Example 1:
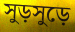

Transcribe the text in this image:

সুড়সুড়ে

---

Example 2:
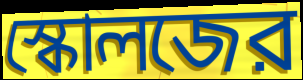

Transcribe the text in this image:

স্কোলজের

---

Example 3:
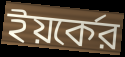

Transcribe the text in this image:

ইয়র্কের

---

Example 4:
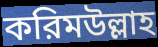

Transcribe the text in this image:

করিমউল্লাহ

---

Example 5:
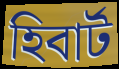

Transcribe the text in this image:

হিবার্ট